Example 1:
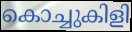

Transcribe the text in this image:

കൊച്ചുകിളി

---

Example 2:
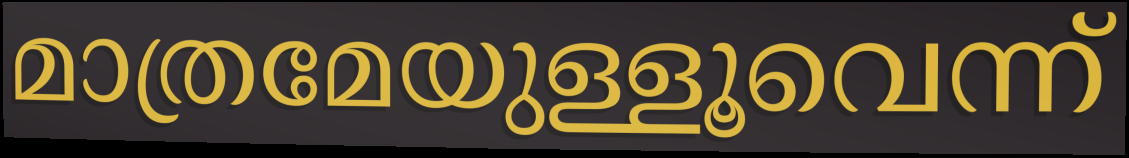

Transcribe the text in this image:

മാത്രമേയുള്ളൂവെന്ന്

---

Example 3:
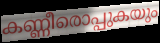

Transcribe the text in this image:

കണ്ണീരൊപ്പുകയും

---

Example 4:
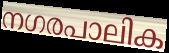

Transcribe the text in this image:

നഗരപാലിക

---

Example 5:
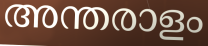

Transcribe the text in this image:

അന്തരാളം